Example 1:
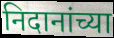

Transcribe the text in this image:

निदानांच्या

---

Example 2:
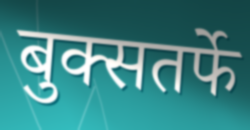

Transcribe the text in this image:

बुक्सतर्फे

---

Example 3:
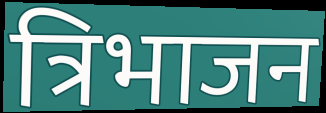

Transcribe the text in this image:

त्रिभाजन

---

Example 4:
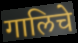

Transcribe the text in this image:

गालिचे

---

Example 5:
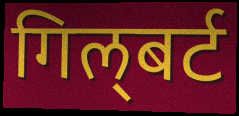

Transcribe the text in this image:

गिल्बर्ट